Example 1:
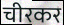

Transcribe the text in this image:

चीरकर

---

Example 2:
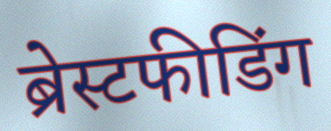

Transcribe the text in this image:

ब्रेस्टफीडिंग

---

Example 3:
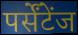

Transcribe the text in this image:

पर्सेंटेंज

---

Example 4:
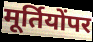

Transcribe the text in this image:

मूर्तियोंपर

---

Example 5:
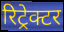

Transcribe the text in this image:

रिट्रेक्टर